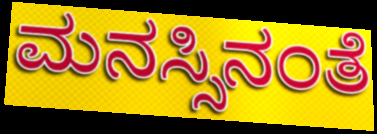
ಮನಸ್ಸಿನಂತೆ